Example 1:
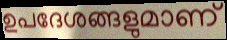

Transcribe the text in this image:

ഉപദേശങ്ങളുമാണ്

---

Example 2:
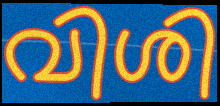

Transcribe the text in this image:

വിശി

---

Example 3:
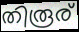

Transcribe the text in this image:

തിരൂര്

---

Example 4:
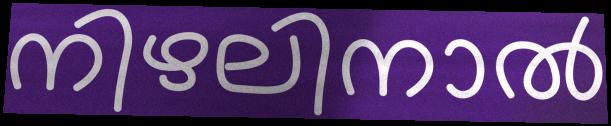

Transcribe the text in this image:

നിഴലിനാൽ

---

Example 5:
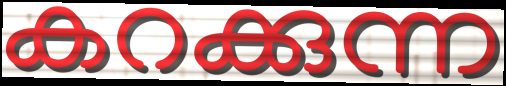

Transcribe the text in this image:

കറക്കുന്ന